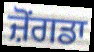
ਜ਼ੋਂਗਡਾ